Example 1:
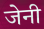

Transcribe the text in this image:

जेनी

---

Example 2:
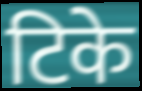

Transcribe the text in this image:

टिके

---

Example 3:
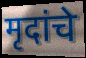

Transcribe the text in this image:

मृदांचे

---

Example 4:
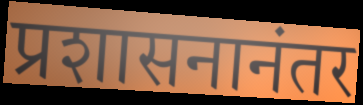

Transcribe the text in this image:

प्रशासनानंतर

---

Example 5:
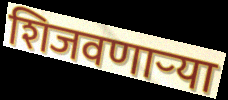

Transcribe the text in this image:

शिजवणाऱ्या